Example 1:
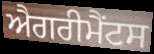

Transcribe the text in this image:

ਐਗਰੀਮੈਂਟਸ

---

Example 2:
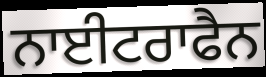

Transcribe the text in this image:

ਨਾਈਟਰਾਫੈਨ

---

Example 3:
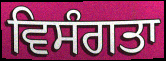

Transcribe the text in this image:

ਵਿਸੰਗਤਾ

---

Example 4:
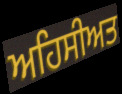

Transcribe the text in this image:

ਅਹਿਸੀਅਤ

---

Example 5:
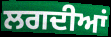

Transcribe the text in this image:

ਲਗਦੀਆਂ